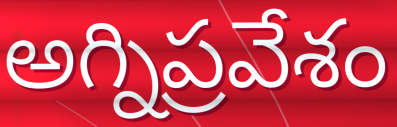
అగ్నిప్రవేశం